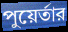
পুয়ের্তার